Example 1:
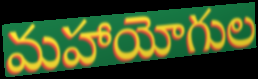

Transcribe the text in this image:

మహాయోగుల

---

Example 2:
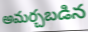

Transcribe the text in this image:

అమర్చబడిన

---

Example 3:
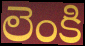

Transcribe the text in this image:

లెంకి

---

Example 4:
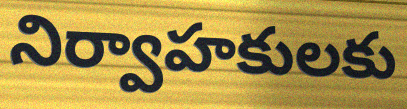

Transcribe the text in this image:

నిర్వాహకులకు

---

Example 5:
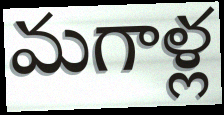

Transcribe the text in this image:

మగాళ్ల